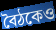
বৈঠকেও